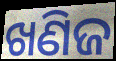
ଖଣିଜ